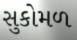
સુકોમળ